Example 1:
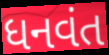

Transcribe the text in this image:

ધનવંત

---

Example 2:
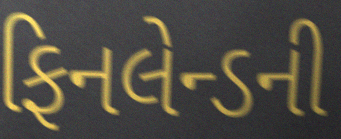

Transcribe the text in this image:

ફિનલેન્ડની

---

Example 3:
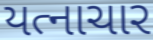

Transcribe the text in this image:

યત્નાચાર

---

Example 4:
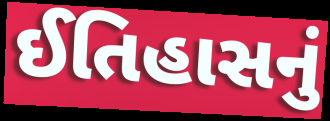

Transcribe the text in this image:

ઈતિહાસનું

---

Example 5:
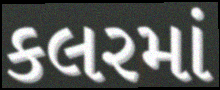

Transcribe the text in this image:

કલરમાં